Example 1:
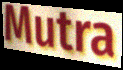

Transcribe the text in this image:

Mutra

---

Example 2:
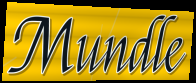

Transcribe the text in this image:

Mundle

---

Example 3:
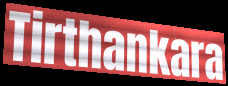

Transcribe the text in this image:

Tirthankara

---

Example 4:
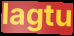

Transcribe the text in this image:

lagtu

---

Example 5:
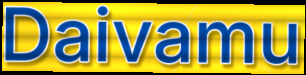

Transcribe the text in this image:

Daivamu